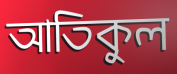
আতিকুল